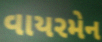
વાયરમેન